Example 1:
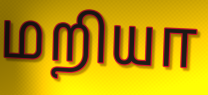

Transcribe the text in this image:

மறியா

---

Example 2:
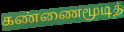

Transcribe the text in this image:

கண்ணைமூடித்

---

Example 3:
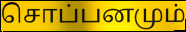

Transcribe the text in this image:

சொப்பனமும்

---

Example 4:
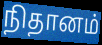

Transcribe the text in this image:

நிதானம்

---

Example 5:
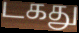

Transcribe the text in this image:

டகது